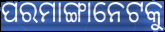
ପରମାଙ୍ଗାନେଟକୁ